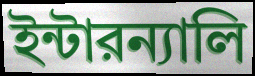
ইন্টারন্যালি